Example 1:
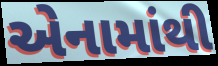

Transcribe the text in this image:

એનામાંથી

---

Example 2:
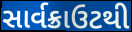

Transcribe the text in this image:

સાર્વક્રાઉટથી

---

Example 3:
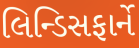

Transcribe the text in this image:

લિન્ડિસફાર્ને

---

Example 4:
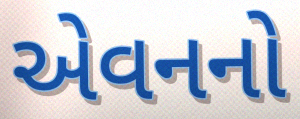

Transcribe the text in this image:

એવનનો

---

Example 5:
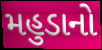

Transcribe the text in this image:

મહુડાનો